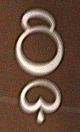
ర్ధి